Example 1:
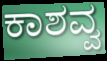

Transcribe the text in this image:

ಕಾಶವ್ವ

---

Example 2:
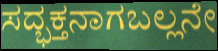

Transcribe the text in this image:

ಸದ್ಭಕ್ತನಾಗಬಲ್ಲನೇ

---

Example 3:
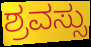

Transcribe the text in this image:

ಶ್ರವಸ್ಸು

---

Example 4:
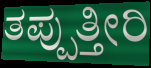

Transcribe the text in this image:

ತಪ್ಪುತ್ತೀರಿ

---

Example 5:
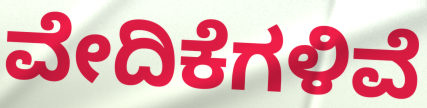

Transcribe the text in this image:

ವೇದಿಕೆಗಳಿವೆ